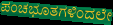
ಪಂಚಭೂತಗಳಿಂದಲೇ